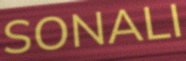
SONALI